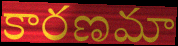
కారణమా